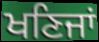
ਖਣਿਜਾਂ